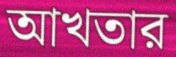
আখতার